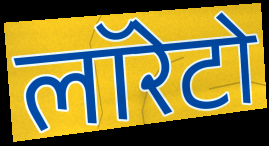
लॉरेटो